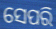
ସେପରି